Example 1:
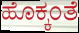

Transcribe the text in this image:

ಹೊಕ್ಕಂತೆ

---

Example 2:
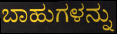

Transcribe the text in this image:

ಬಾಹುಗಳನ್ನು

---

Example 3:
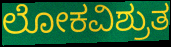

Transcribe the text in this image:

ಲೋಕವಿಶ್ರುತ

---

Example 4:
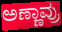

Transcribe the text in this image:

ಅಣ್ಣಾವ್ರು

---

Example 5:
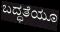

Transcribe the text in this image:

ಬದ್ಧತೆಯೂ